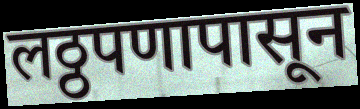
लठ्ठपणापासून